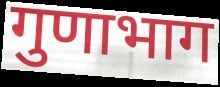
गुणाभाग